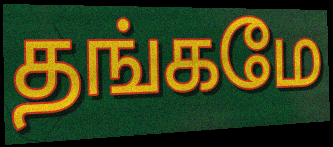
தங்கமே